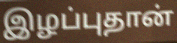
இழப்புதான்